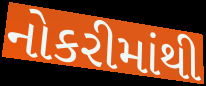
નોકરીમાંથી